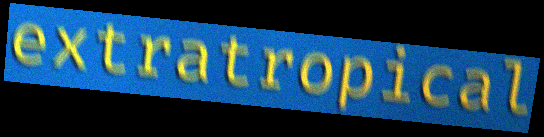
extratropical